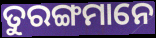
ତୁରଙ୍ଗମାନେ